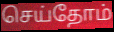
செய்தோம்